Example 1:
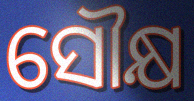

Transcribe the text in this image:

ସୌକ୍ଷ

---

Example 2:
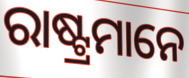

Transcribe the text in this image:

ରାଷ୍ଟ୍ରମାନେ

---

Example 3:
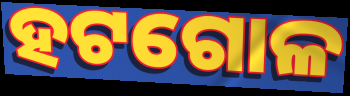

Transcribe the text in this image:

ହଟଗୋଳ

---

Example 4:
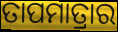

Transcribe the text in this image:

ତାପମାତ୍ରାର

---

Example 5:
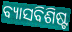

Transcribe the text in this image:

ବ୍ୟାସବିଶିଷ୍ଟ